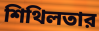
শিথিলতার